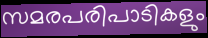
സമരപരിപാടികളും